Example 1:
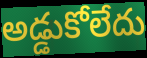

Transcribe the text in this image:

అడ్డుకోలేదు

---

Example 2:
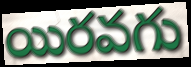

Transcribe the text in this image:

యిరవగు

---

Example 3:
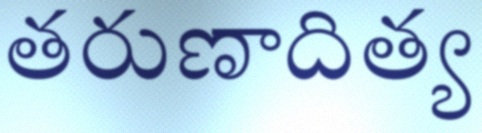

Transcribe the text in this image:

తరుణాదిత్య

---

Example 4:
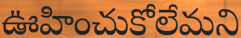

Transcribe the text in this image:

ఊహించుకోలేమని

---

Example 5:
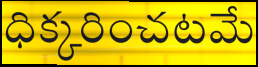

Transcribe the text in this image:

ధిక్కరించటమే